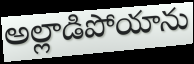
అల్లాడిపోయాను